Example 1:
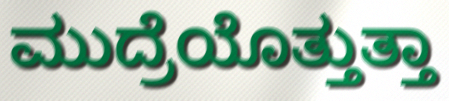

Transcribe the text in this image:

ಮುದ್ರೆಯೊತ್ತುತ್ತಾ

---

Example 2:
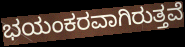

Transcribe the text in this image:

ಭಯಂಕರವಾಗಿರುತ್ತವೆ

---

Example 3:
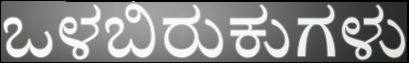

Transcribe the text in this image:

ಒಳಬಿರುಕುಗಳು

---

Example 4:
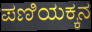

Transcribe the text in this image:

ಪಣಿಯಕ್ಕನ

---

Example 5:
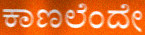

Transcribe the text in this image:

ಕಾಣಲೆಂದೇ